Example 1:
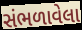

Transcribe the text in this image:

સંભળાવેલા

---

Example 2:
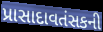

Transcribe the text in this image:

પ્રાસાદાવતંસકની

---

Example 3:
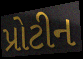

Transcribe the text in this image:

પ્રોટીન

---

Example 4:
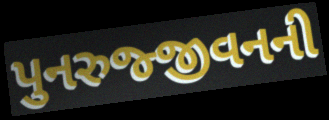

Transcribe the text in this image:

પુનરુજ્જીવનની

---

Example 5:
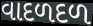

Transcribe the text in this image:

વાદળદળ